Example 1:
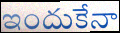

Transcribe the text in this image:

ఇందుకేనా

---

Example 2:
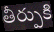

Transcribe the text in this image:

తీర్పుకి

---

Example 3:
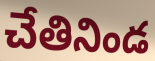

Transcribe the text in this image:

చేతినిండ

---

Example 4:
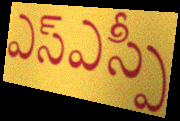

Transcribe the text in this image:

ఎస్ఎస్పీ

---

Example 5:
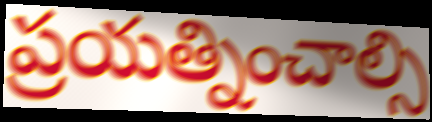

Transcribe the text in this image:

ప్రయత్నించాల్సి